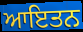
ਆਇਤਨ